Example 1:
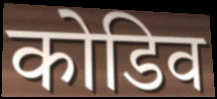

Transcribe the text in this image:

कोडिव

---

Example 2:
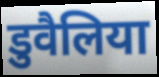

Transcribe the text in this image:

डुवैलिया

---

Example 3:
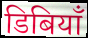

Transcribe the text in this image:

डिबियाँ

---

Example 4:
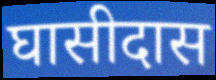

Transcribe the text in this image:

घासीदास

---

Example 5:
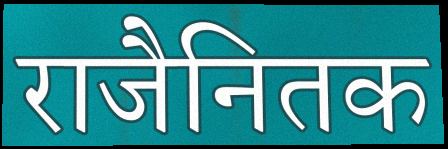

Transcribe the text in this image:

राजैनितक